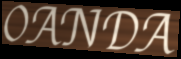
OANDA